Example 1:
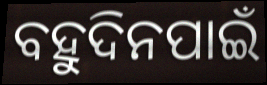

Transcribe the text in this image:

ବହୁଦିନପାଇଁ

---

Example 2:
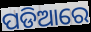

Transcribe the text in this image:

ପଡିଆରେ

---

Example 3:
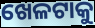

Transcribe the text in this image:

ଖେଳଟାକୁ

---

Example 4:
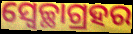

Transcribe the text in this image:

ସ୍ବେଚ୍ଛାଗ୍ରହର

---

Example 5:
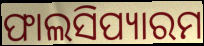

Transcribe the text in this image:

ଫାଲସିପ୍ୟାରମ